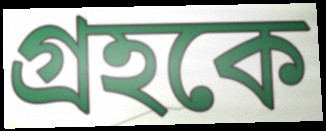
গ্রহকে